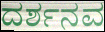
ದರ್ಶನವ